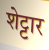
शेट्टार